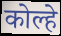
कोल्हे